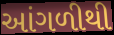
આંગળીથી